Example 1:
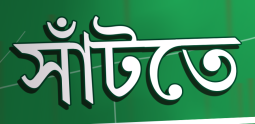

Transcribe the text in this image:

সাঁটতে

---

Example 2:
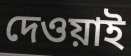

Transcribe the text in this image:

দেওয়াই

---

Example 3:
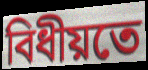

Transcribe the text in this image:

বিধীয়তে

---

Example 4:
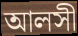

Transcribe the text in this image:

আলসী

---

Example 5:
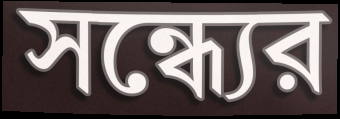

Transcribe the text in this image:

সন্ধ্যের